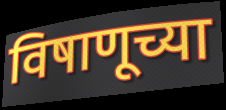
विषाणूच्या